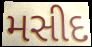
મસીદ